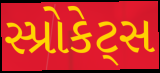
સ્પ્રોકેટ્સ